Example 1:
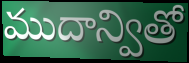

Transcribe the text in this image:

ముదాన్వితో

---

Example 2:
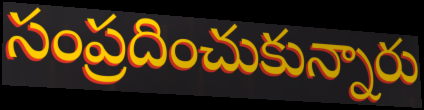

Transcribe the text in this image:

సంప్రదించుకున్నారు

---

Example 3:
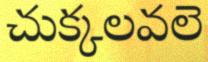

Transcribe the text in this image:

చుక్కలవలె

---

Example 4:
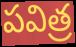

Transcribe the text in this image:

పవిత్ర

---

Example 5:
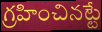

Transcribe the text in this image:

గ్రహించినట్టే